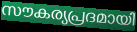
സൗകര്യപ്രദമായി